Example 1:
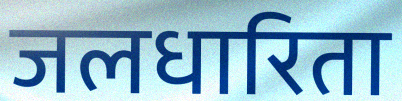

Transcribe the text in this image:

जलधारिता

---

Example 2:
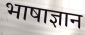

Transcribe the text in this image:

भाषाज्ञान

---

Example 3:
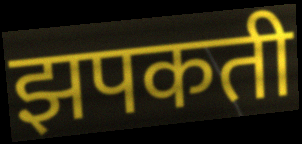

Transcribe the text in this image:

झपकती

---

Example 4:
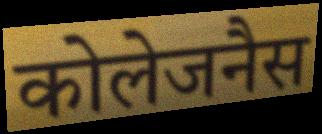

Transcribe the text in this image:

कोलेजनैस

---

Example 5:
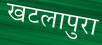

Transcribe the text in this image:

खटलापुरा